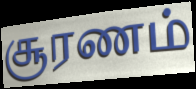
சூரணம்